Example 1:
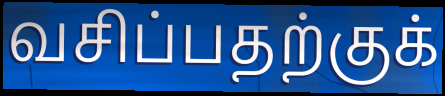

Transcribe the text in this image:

வசிப்பதற்குக்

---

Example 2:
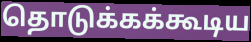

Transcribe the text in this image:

தொடுக்கக்கூடிய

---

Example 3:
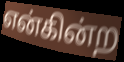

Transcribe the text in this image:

என்கின்ற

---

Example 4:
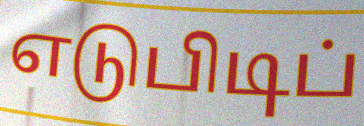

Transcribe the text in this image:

எடுபிடிப்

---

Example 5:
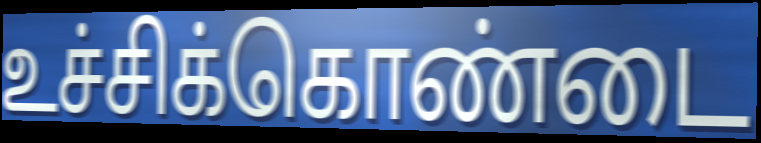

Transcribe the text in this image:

உச்சிக்கொண்டை